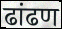
ढांढण